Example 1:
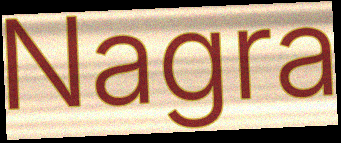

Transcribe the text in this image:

Nagra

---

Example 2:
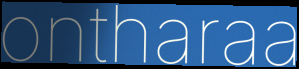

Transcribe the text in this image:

ontharaa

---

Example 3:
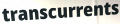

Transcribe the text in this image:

transcurrents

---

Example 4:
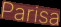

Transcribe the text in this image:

Parisa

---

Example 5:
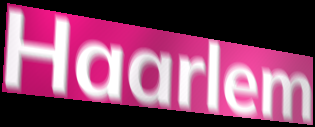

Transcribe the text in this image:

Haarlem